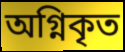
অগ্নিকৃত